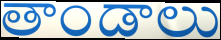
తాండాలు